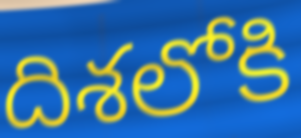
దిశలోకి